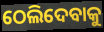
ଠେଲିଦେବାକୁ